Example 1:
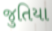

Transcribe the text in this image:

જુતિયા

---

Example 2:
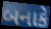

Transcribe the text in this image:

બનાકે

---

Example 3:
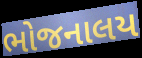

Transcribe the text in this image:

ભોજનાલય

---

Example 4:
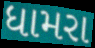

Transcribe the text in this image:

ધામરા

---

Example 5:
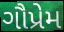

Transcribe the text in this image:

ગૌપ્રેમ